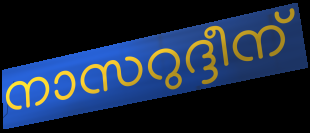
നാസറുദ്ദീന്